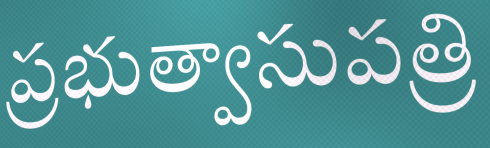
ప్రభుత్వాసుపత్రి